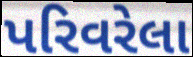
પરિવરેલા